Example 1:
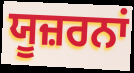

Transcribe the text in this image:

ਯੂਜ਼ਰਨਾਂ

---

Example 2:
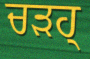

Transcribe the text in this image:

ਚੜਹ੍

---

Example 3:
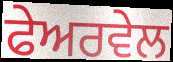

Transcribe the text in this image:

ਫੇਅਰਵੇਲ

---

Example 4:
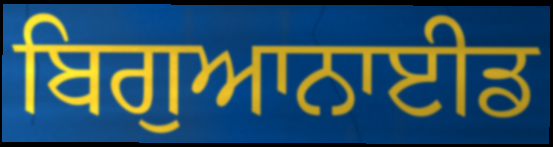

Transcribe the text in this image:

ਬਿਗੁਆਨਾਈਡ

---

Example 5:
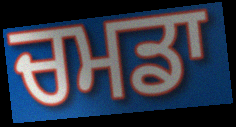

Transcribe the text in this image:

ਚਮਡਾ